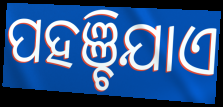
ପହଞ୍ଚିଯାଏ